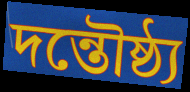
দন্তৌষ্ঠ্য